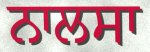
ਨਾਲਸਾ